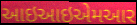
આઇઆઇએમઆર